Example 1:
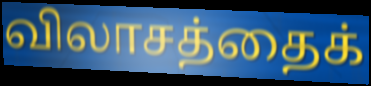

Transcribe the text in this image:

விலாசத்தைக்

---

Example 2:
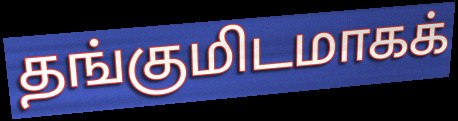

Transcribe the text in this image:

தங்குமிடமாகக்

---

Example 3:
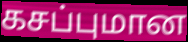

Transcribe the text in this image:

கசப்புமான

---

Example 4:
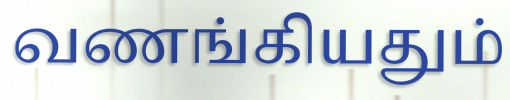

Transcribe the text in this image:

வணங்கியதும்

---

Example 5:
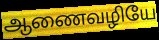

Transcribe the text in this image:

ஆணைவழியே